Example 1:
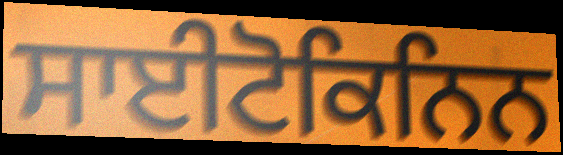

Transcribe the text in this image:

ਸਾਈਟੋਕਿਨਿਨ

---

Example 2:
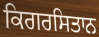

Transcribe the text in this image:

ਕਿਗਰਸਿਤਾਨ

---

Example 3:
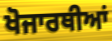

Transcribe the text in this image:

ਖੋਜਾਰਥੀਆਂ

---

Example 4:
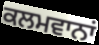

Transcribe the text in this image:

ਕਲਮਵਾਨਾਂ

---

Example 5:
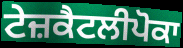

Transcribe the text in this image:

ਟੇਜ਼ਕੈਟਲੀਪੋਕਾ